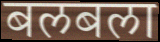
बलबला